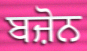
ਬਜ਼ੋਨ